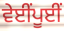
ਵੇਈਂਪੂਈਂ